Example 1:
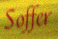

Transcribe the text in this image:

Soffer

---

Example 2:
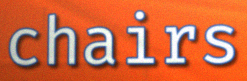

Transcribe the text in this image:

chairs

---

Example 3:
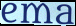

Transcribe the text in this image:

ema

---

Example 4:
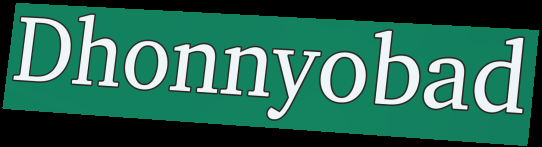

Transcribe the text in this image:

Dhonnyobad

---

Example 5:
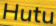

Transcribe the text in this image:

Hutu